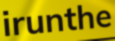
irunthe